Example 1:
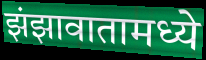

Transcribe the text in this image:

झंझावातामध्ये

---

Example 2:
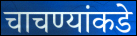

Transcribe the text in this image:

चाचण्यांकडे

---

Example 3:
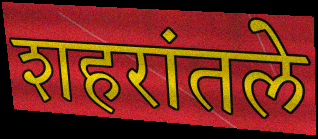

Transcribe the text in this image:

शहरांतले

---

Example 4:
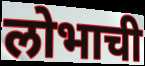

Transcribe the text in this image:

लोभाची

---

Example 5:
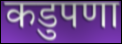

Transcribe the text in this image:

कडुपणा